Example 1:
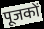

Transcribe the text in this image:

पूजकों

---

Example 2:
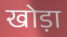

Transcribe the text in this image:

खोड़ा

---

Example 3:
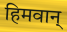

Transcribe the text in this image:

हिमवान्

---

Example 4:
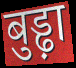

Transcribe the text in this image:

बुड्ढ़ा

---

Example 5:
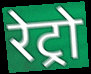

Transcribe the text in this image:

रेट्रो